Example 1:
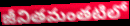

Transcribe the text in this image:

జీవితమంతటిలో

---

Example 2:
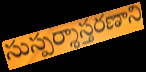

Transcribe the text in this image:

సుస్పర్శాస్తరణాని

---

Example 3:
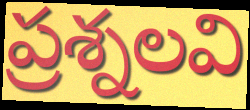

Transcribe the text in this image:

ప్రశ్నలవి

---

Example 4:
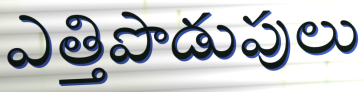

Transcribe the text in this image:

ఎత్తిపొడుపులు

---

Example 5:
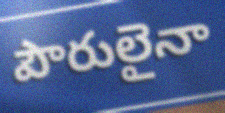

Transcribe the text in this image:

పౌరులైనా